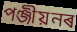
পঞ্জীয়নৰ